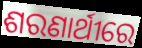
ଶରଣାର୍ଥୀରେ